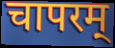
चापरम्